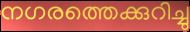
നഗരത്തെക്കുറിച്ചു